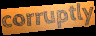
corruptly